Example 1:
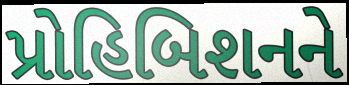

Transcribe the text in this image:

પ્રોહિબિશનને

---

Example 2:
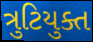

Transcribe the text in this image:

ત્રુટિયુક્ત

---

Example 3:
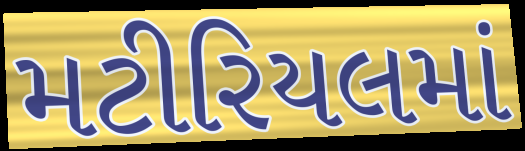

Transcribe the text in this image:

મટીરિયલમાં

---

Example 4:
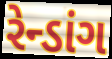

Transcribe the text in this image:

રેન્ડાંગ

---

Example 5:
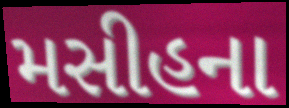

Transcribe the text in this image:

મસીહના